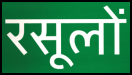
रसूलों